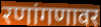
रणांगणावर